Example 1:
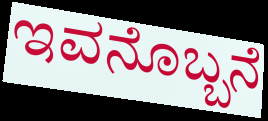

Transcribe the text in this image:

ಇವನೊಬ್ಬನೆ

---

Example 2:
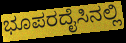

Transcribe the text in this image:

ಭೂಪರದೈಸಿನಲ್ಲಿ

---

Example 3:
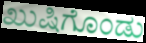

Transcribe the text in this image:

ಖುಷಿಗೊಂಡು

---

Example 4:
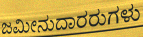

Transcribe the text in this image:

ಜಮೀನುದಾರರುಗಳು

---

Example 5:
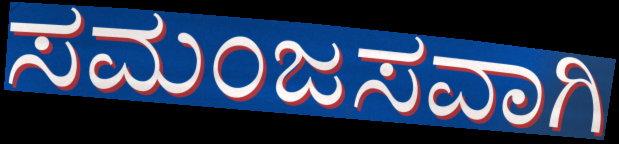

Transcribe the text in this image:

ಸಮಂಜಸವಾಗಿ